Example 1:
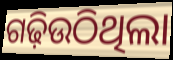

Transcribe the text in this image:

ଗଢ଼ିଉଠିଥିଲା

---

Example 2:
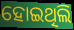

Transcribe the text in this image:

ହୋଇଥିଲି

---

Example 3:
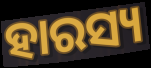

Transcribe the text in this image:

ହାରସ୍ୟ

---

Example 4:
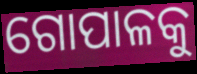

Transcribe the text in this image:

ଗୋପାଳକୁ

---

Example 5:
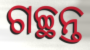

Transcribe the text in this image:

ଗଚ୍ଛନ୍ତ